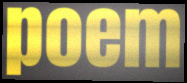
poem